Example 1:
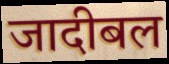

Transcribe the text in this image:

जादीबल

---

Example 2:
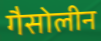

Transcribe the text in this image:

गैसोलीन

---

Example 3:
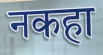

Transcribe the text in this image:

नकहा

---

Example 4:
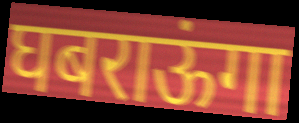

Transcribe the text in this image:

घबराऊंगा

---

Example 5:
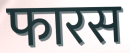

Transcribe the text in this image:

फारस